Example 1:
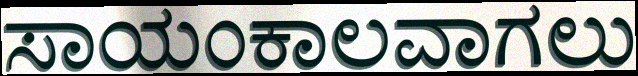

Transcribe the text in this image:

ಸಾಯಂಕಾಲವಾಗಲು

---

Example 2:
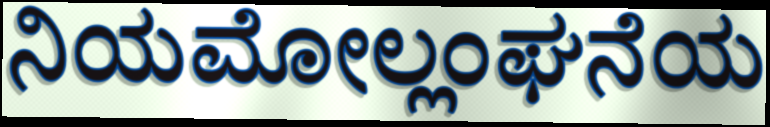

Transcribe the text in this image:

ನಿಯಮೋಲ್ಲಂಘನೆಯ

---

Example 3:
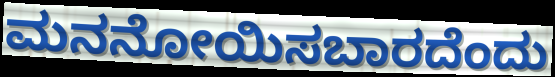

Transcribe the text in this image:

ಮನನೋಯಿಸಬಾರದೆಂದು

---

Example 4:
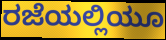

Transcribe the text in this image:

ರಜೆಯಲ್ಲಿಯೂ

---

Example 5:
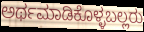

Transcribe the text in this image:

ಅರ್ಥಮಾಡಿಕೊಳ್ಳಬಲ್ಲರು